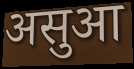
असुआ